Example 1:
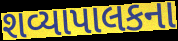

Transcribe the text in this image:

શવ્યાપાલકના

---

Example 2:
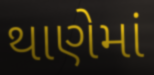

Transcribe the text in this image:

થાણેમાં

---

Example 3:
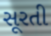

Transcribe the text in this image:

સૂરતી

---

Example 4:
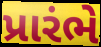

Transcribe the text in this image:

પ્રારંભે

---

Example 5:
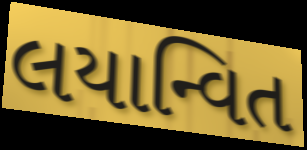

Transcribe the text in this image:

લયાન્વિત